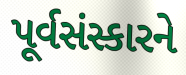
પૂર્વસંસ્કારને